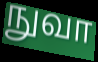
நுவா